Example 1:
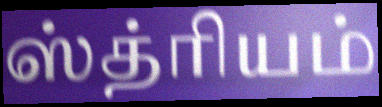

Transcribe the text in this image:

ஸ்த்ரியம்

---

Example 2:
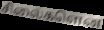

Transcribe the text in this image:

சிலைகளென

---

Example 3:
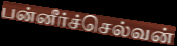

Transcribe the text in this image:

பன்னீர்ச்செல்வன்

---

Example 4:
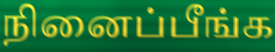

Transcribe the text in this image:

நினைப்பீங்க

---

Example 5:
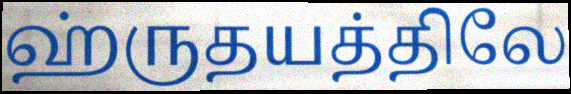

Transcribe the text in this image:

ஹ்ருதயத்திலே